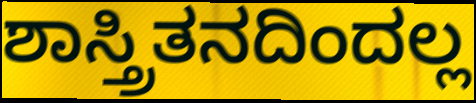
ಶಾಸ್ತ್ರಿತನದಿಂದಲ್ಲ